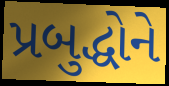
પ્રબુદ્ધોને